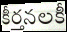
కీర్తనలకీ